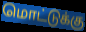
மொட்டுக்கு